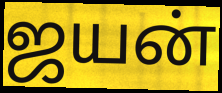
ஜயன்